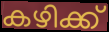
കഴിക്ക്